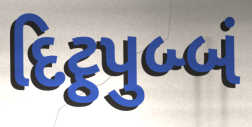
દિટ્ઠપુબ્બં